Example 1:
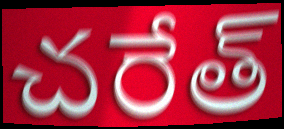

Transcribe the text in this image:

చరేత్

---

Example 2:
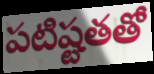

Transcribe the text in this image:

పటిష్టతతో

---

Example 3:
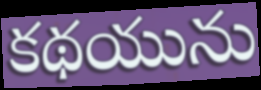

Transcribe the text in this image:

కథయును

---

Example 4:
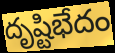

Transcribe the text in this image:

దృష్టిభేదం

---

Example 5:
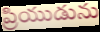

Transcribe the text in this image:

ప్రియుడును